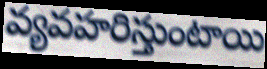
వ్యవహరిస్తుంటాయి